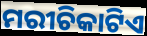
ମରୀଚିକାଟିଏ